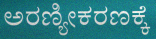
ಅರಣ್ಯೀಕರಣಕ್ಕೆ